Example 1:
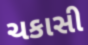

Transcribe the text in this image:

ચકાસી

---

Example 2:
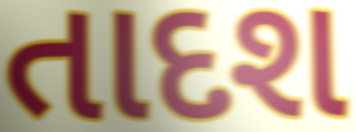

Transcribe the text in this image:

તાદશ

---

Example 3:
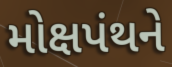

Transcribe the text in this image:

મોક્ષપંથને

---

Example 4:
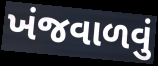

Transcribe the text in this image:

ખંજવાળવું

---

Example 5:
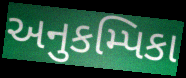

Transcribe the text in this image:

અનુકમ્પિકા